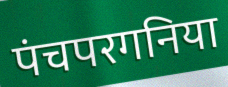
पंचपरगनिया